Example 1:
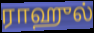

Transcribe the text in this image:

ராஹுல்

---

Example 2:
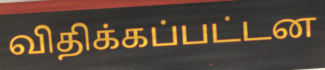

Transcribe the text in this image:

விதிக்கப்பட்டன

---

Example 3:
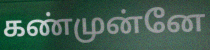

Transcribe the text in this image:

கண்முன்னே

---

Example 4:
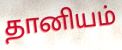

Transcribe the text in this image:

தானியம்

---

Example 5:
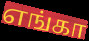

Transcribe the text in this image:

எங்கா